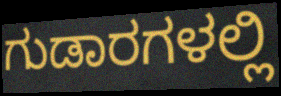
ಗುಡಾರಗಳಲ್ಲಿ